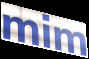
mim